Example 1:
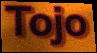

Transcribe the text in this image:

Tojo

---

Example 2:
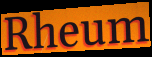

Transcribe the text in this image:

Rheum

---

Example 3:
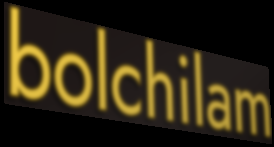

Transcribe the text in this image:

bolchilam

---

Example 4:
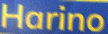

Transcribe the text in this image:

Harino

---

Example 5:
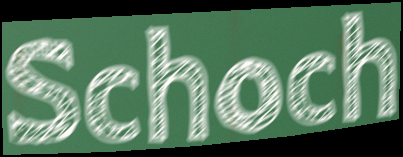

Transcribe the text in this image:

Schoch